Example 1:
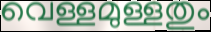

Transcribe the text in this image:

വെള്ളമുള്ളതും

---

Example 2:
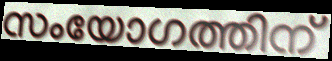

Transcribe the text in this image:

സംയോഗത്തിന്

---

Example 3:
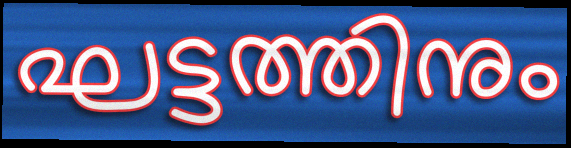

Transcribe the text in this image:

ഘട്ടത്തിനും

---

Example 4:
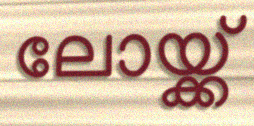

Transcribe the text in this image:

ലോയ്ക്ക്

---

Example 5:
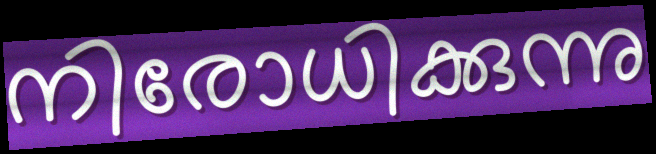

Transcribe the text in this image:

നിരോധിക്കുന്നു